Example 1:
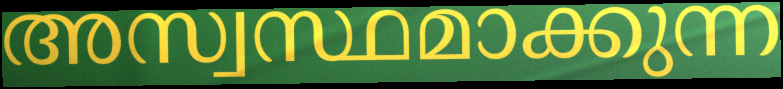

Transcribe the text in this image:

അസ്വസ്ഥമാക്കുന്ന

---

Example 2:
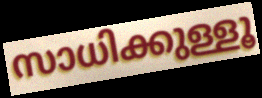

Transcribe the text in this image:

സാധിക്കുള്ളൂ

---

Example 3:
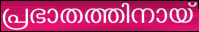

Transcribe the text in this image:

പ്രഭാതത്തിനായ്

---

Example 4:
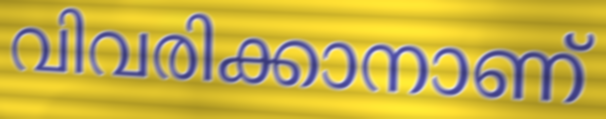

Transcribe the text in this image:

വിവരിക്കാനാണ്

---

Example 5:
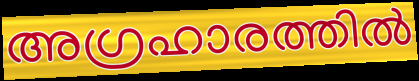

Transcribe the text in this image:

അഗ്രഹാരത്തിൽ